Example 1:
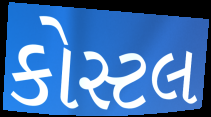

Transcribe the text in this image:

કોસ્ટલ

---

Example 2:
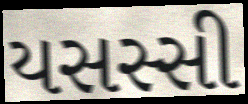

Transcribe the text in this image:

યસસ્સી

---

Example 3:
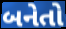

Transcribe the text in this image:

બનેતો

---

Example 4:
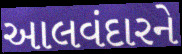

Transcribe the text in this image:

આલવંદારને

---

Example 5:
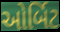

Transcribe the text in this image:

ઓર્બિટ